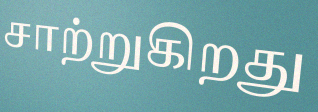
சாற்றுகிறது